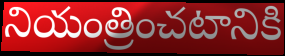
నియంత్రించటానికి